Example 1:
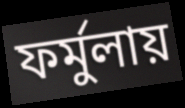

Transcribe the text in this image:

ফর্মুলায়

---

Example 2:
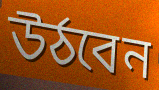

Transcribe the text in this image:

উঠবেন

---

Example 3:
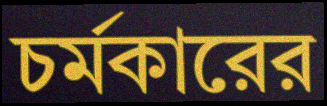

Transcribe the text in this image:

চর্মকারের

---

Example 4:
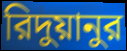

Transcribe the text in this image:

রিদুয়ানুর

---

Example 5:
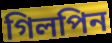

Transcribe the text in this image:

গিলপিন